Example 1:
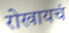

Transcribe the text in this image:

रोखायचं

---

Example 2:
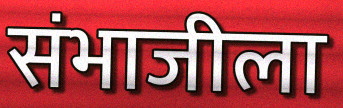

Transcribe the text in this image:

संभाजीला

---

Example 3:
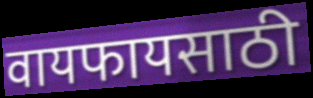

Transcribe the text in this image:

वायफायसाठी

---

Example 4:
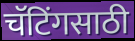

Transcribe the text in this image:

चॅटिंगसाठी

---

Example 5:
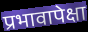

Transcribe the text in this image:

प्रभावापेक्षा